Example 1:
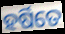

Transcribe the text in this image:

ହର୍ଷିତେ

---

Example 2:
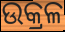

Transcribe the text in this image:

ଉକ୍ରଳ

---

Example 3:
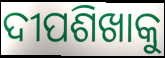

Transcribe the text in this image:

ଦୀପଶିଖାକୁ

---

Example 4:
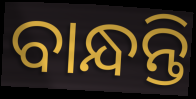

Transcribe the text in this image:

ବାନ୍ଧନ୍ତି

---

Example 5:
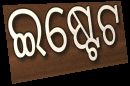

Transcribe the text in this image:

ଇଷ୍ଟେଟ